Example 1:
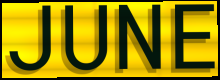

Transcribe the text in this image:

JUNE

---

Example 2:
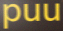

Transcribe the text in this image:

puu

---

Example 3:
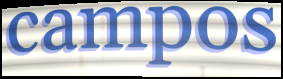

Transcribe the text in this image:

campos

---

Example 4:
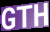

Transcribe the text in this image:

GTH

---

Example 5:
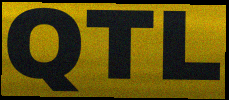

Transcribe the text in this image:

QTL